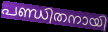
പണ്ഡിതനായി